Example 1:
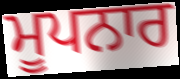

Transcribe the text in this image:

ਮੂਪਨਾਰ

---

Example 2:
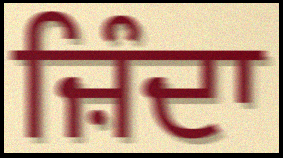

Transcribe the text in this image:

ਜ਼ਿੰਦਾ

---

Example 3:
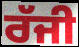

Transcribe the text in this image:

ਰੱਜੀ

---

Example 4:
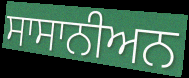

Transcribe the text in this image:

ਸਾਸਾਨੀਅਨ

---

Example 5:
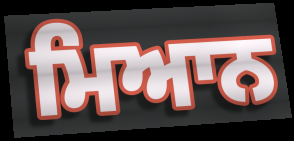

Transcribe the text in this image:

ਮਿਆਨ